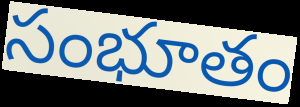
సంభూతం